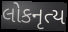
લોકનૃત્ય